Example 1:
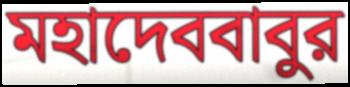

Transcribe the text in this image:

মহাদেববাবুর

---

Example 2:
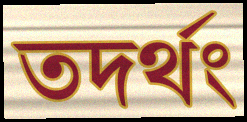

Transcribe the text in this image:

তদর্থং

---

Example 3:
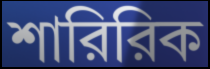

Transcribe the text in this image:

শারিরিক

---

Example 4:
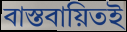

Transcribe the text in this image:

বাস্তবায়িতই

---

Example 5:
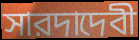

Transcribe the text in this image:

সারদাদেবী